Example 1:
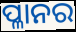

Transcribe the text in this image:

ପ୍ଳାନର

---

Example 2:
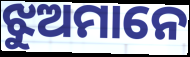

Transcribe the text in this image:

ଝୁଅମାନେ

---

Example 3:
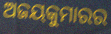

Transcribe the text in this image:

ଅଜୟକୁମାରର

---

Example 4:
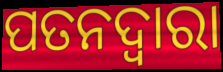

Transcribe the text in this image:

ପତନଦ୍ଵାରା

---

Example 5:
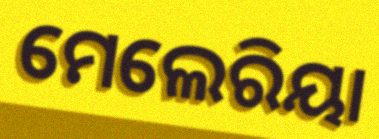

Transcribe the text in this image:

ମେଲେରିୟା